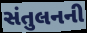
સંતુલનની